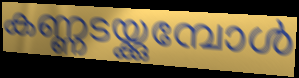
കണ്ണടയ്ക്കുമ്പോൾ